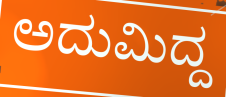
ಅದುಮಿದ್ದ